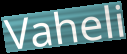
Vaheli